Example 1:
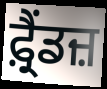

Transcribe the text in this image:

ਫ਼੍ਰੈਂਡਜ਼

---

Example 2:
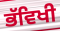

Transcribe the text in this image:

ਭੱਵਿਖੀ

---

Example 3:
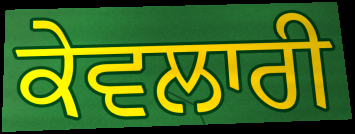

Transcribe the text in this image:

ਕੇਵਲਾਰੀ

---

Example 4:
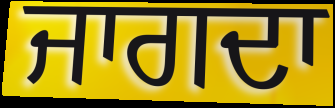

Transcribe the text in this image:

ਜਾਗਦਾ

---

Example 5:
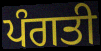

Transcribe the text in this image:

ਪੰਗਤੀ